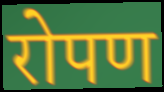
रोपण